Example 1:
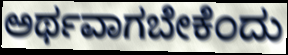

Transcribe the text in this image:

ಅರ್ಥವಾಗಬೇಕೆಂದು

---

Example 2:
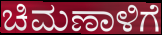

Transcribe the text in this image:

ಚಿಮಣಾಳಿಗೆ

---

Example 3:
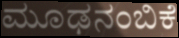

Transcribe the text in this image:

ಮೂಢನಂಬಿಕೆ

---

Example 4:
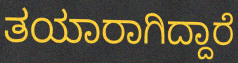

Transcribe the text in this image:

ತಯಾರಾಗಿದ್ದಾರೆ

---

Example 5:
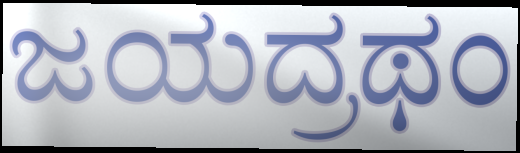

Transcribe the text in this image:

ಜಯದ್ರಥಂ